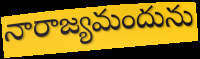
నారాజ్యమందును